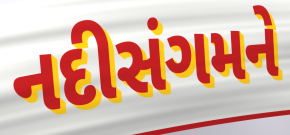
નદીસંગમને